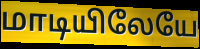
மாடியிலேயே